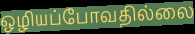
ஒழியப்போவதில்லை